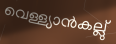
വെള്ള്യാൻകല്ലു്